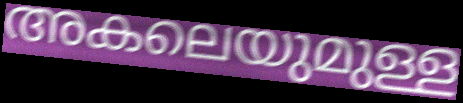
അകലെയുമുള്ള